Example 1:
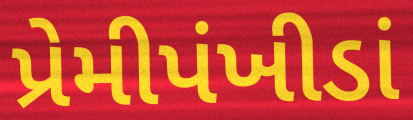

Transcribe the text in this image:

પ્રેમીપંખીડાં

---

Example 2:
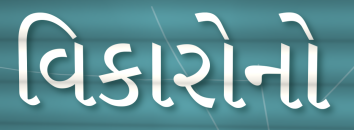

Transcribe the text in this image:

વિકારોનો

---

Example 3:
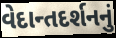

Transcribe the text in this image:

વેદાન્તદર્શનનું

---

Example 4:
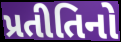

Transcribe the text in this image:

પ્રતીતિનો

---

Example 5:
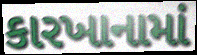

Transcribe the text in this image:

કારખાનામાં